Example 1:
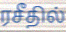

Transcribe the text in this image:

ரசீதில்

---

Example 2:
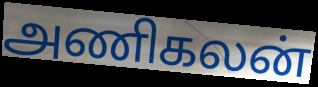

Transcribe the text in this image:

அணிகலன்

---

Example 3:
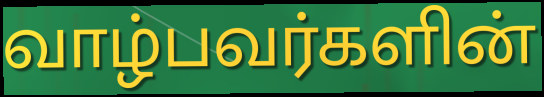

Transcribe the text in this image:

வாழ்பவர்களின்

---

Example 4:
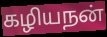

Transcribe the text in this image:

கழியநன்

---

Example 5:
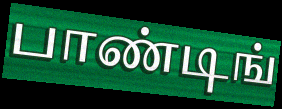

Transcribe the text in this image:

பாண்டிங்